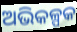
ଅଭିକଳ୍ପକ